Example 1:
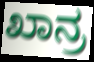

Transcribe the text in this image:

ಖಾನ್ರ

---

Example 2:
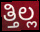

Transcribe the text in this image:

ತ್ತಿಲ್ಲ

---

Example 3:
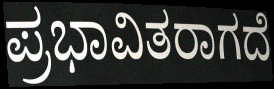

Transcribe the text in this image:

ಪ್ರಭಾವಿತರಾಗದೆ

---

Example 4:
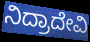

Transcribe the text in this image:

ನಿದ್ರಾದೇವಿ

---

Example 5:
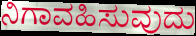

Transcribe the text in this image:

ನಿಗಾವಹಿಸುವುದು